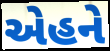
એહને